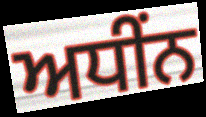
ਅਧੀਂਨ